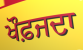
ਖੌਫ਼ਜਦਾ